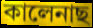
কালেনাছ